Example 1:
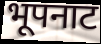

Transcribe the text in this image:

भूपनाट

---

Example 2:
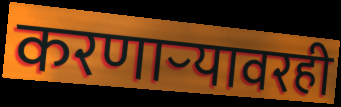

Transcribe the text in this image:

करणाऱ्यावरही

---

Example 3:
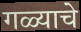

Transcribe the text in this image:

गळ्याचे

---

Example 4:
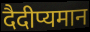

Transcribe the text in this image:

दैदीप्यमान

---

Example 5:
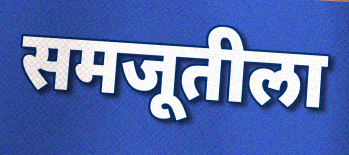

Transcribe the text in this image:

समजूतीला